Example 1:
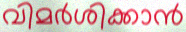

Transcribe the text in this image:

വിമർശിക്കാൻ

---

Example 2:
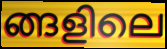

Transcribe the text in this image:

ങ്ങളിലെ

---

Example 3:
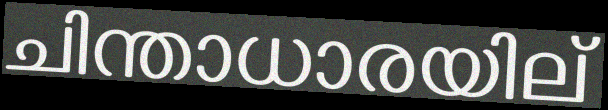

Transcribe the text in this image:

ചിന്താധാരയില്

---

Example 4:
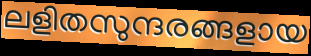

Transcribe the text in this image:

ലളിതസുന്ദരങ്ങളായ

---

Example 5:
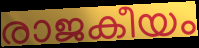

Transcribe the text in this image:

രാജകീയം